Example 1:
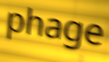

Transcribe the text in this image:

phage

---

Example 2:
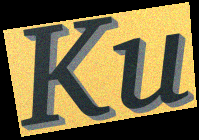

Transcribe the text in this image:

Ku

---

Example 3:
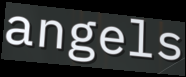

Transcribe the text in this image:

angels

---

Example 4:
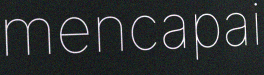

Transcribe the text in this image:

mencapai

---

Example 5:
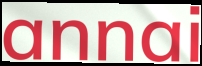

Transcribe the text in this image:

annai